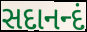
સદાનન્દં